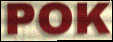
POK